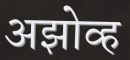
अझोव्ह